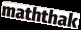
maththak